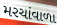
મરચાંવાળા